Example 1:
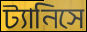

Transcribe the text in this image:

ট্যানিসে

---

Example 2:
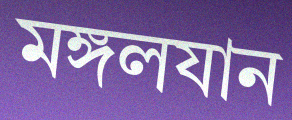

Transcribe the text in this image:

মঙ্গলযান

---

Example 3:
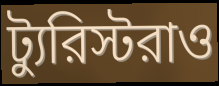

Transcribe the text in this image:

ট্যুরিস্টরাও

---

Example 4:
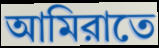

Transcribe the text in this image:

আমিরাতে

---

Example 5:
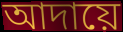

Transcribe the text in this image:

আদায়ে